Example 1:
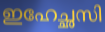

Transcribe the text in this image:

ഇഹേച്ഛസി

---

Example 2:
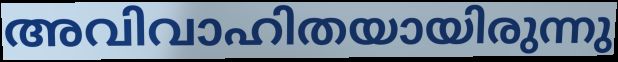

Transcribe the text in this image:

അവിവാഹിതയായിരുന്നു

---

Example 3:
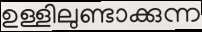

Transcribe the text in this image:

ഉള്ളിലുണ്ടാക്കുന്ന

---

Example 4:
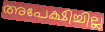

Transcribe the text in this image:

അപേക്ഷിച്ചില്ല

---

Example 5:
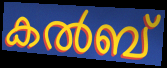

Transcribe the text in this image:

കൽബ്